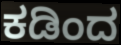
ಕಡಿಂದ